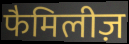
फैमिलीज़